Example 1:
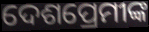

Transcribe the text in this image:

ଦେଶପ୍ରେମୀଙ୍କ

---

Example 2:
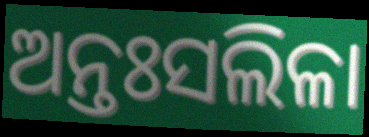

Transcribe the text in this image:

ଅନ୍ତଃସଲିଳା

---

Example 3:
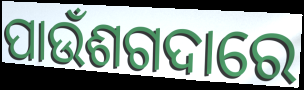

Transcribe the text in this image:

ପାଉଁଶଗଦାରେ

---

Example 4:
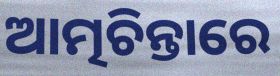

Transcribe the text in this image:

ଆତ୍ମଚିନ୍ତାରେ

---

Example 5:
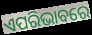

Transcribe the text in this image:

ଏପରିଭାବରେ